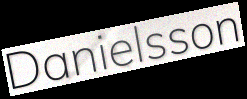
Danielsson